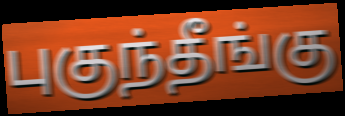
புகுந்தீங்கு